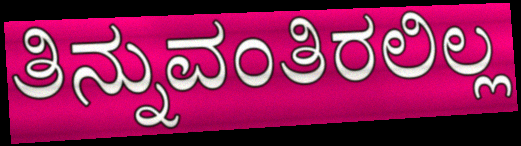
ತಿನ್ನುವಂತಿರಲಿಲ್ಲ